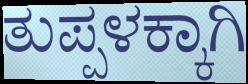
ತುಪ್ಪಳಕ್ಕಾಗಿ